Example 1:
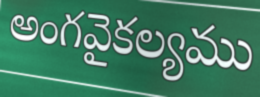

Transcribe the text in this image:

అంగవైకల్యము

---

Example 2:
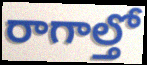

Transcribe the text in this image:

రాగాల్తో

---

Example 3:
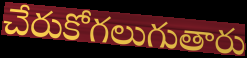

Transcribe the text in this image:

చేరుకోగలుగుతారు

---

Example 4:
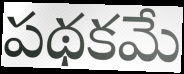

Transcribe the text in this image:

పథకమే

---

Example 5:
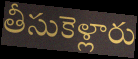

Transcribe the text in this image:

తీసుకెళ్లారు